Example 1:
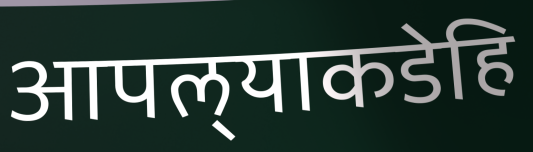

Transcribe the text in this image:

आपल्याकडेहि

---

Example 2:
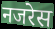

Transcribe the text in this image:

नजरेस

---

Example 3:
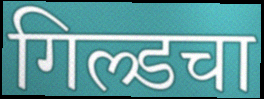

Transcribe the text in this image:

गिल्डचा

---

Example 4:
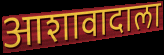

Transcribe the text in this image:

आशावादाला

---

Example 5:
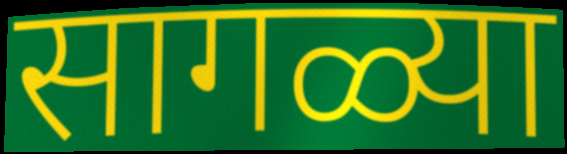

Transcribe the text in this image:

सागळ्या